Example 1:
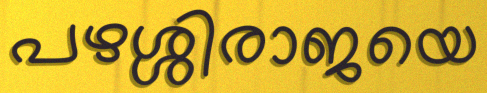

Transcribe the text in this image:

പഴശ്ശിരാജയെ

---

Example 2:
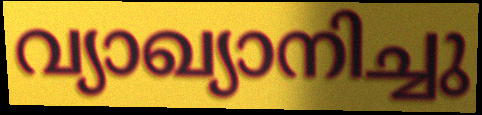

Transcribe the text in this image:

വ്യാഖ്യാനിച്ചു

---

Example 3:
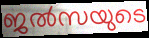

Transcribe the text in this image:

ജൽസയുടെ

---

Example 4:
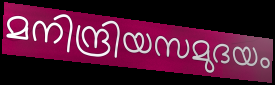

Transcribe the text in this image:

മനിന്ദ്രിയസമുദയം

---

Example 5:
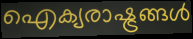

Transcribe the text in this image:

ഐക്യരാഷ്ട്രങ്ങൾ